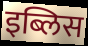
इब्लिस